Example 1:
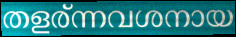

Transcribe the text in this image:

തളര്ന്നവശനായ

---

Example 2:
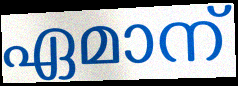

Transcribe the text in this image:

ഏമാന്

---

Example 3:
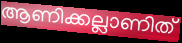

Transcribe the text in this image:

ആണിക്കല്ലാണിത്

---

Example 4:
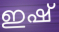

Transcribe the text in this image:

ഇഷ്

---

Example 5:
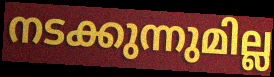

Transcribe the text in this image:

നടക്കുന്നുമില്ല